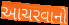
આચરવાનો